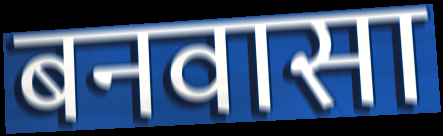
बनवासा